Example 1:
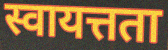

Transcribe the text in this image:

स्वायत्तता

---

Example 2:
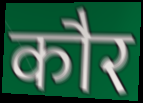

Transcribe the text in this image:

कौर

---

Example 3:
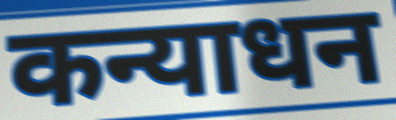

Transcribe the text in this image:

कन्याधन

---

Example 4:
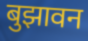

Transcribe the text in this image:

बुझावन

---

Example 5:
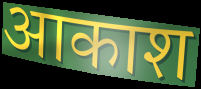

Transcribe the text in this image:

आकाश